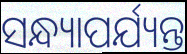
ସନ୍ଧ୍ୟାପର୍ଯ୍ୟନ୍ତ